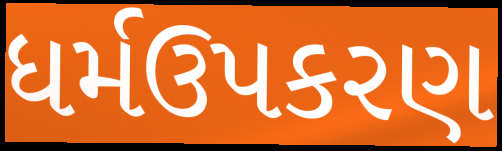
ધર્મઉપકરણ